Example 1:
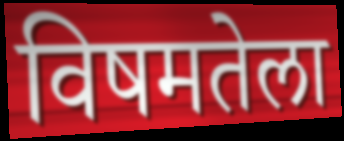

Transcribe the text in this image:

विषमतेला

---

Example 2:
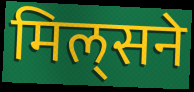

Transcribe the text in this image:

मिल्सने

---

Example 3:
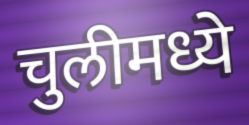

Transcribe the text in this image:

चुलीमध्ये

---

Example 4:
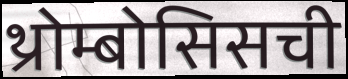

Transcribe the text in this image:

थ्रोम्बोसिसची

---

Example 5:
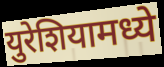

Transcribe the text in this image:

युरेशियामध्ये